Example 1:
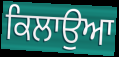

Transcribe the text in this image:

ਕਿਲਾਉਆ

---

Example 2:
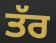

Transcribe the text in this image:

ਤੱਰ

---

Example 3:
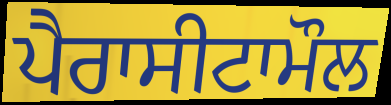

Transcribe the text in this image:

ਪੈਰਾਸੀਟਾਮੌਲ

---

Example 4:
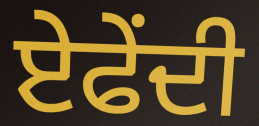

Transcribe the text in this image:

ਏਫੇਂਦੀ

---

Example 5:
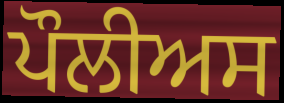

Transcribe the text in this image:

ਪੌਲੀਅਸ